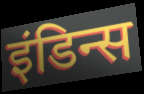
इंडिन्स